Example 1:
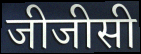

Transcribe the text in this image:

जीजीसी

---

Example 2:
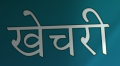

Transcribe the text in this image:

खेचरी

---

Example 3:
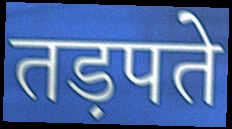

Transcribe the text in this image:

तड़पते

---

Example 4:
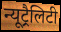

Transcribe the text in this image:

न्यूट्रैलिटी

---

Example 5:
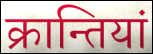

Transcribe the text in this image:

क्रान्तियां